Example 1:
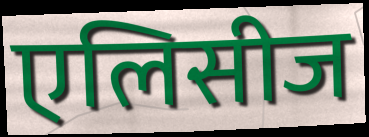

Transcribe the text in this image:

एलिसीज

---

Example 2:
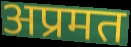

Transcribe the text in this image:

अप्रमत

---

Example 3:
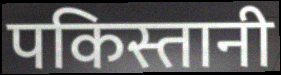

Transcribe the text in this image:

पकिस्तानी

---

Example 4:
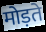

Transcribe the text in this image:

मोड़ते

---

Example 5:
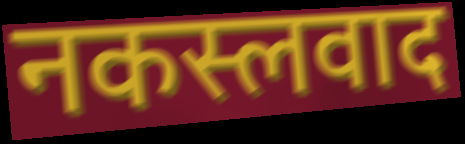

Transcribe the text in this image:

नकस्लवाद